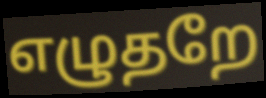
எழுதறே